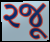
રજૂ